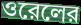
ওরেলের